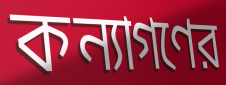
কন্যাগণের